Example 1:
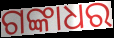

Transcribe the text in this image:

ଗଙ୍କାଧର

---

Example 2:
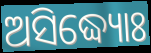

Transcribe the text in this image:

ଅସିଦ୍ଧ୍ୟୋଃ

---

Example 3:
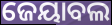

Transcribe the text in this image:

ଜେୟାବଲ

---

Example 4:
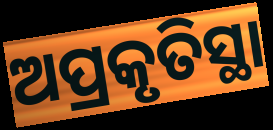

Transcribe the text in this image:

ଅପ୍ରକୃତିସ୍ଥା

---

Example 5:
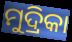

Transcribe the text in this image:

ମୁଦ୍ରିକା